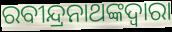
ରବୀନ୍ଦ୍ରନାଥଙ୍କଦ୍ୱାରା